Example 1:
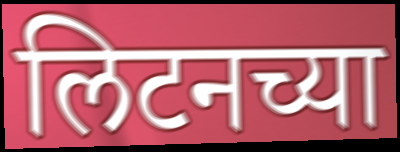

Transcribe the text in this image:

लिटनच्या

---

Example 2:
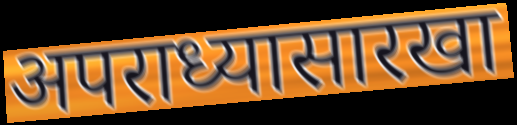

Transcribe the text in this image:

अपराध्यासारखा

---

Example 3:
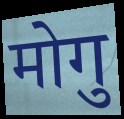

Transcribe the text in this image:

मोगु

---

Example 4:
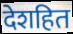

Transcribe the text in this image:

देशहित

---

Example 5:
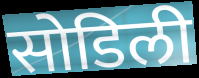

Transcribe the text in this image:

सोडिली